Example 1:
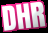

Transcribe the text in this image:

DHR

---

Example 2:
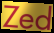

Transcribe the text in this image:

Zed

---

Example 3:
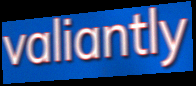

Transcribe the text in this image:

valiantly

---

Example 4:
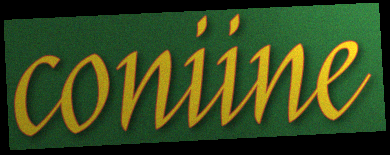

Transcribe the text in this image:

coniine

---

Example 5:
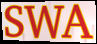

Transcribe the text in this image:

SWA